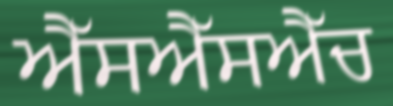
ਐੱਸਐੱਸਐੱਚ